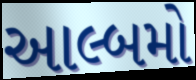
આલ્બમો